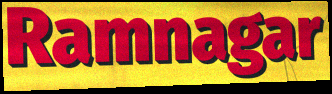
Ramnagar